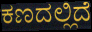
ಕಣದಲ್ಲಿದೆ